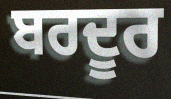
ਬਰਦੂਰ